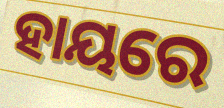
ହାୟରେ